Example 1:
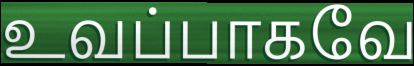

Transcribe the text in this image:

உவப்பாகவே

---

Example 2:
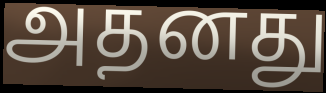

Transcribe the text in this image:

அதனது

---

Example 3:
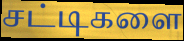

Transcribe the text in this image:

சட்டிகளை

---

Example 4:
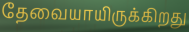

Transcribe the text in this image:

தேவையாயிருக்கிறது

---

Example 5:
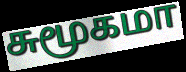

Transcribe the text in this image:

சுமூகமா